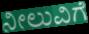
ನೀಲುವಿಗೆ